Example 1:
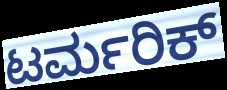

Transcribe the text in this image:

ಟರ್ಮರಿಕ್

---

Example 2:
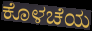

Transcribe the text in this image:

ಕೊಳಚೆಯ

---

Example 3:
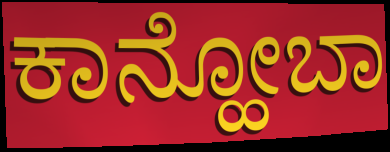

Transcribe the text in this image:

ಕಾನ್ಹೋಬಾ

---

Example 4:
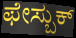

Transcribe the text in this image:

ಫೇಸ್ಬುಕ್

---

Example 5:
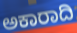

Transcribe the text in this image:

ಅಕಾರಾದಿ